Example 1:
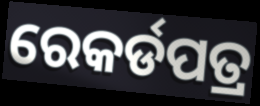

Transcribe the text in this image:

ରେକର୍ଡପତ୍ର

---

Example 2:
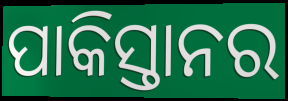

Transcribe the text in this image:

ପାକିସ୍ତାନର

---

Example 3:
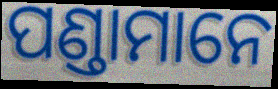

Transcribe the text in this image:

ପଣ୍ଡାମାନେ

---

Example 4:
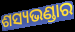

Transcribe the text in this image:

ଶସ୍ୟଭଣ୍ଡାର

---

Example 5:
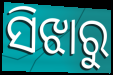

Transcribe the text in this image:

ସିଝାରୁ